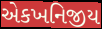
એકખનિજીય